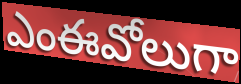
ఎంఈవోలుగా